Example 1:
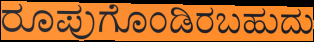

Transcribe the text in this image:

ರೂಪುಗೊಂಡಿರಬಹುದು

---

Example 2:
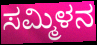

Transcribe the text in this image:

ಸಮ್ಮಿಳನ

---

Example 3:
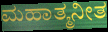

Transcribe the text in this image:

ಮಹಾತ್ಮನೀತ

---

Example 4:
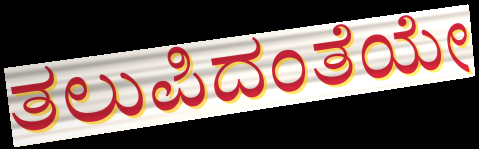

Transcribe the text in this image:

ತಲುಪಿದಂತೆಯೇ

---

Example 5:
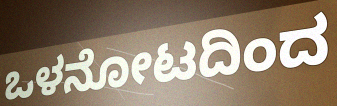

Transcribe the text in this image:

ಒಳನೋಟದಿಂದ